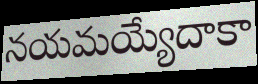
నయమయ్యేదాకా